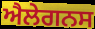
ਐਲੇਗਨਸ